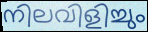
നിലവിളിച്ചും